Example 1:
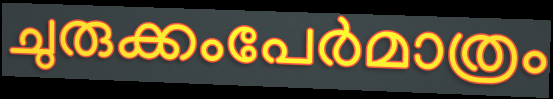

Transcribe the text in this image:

ചുരുക്കംപേർമാത്രം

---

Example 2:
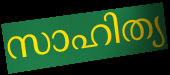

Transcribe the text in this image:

സാഹിത്യ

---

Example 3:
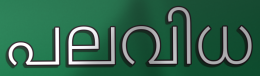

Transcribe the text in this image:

പലവിധ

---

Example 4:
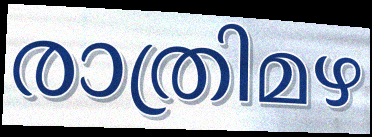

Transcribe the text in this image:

രാത്രിമഴ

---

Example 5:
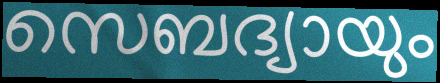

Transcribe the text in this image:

സെബദ്യായും